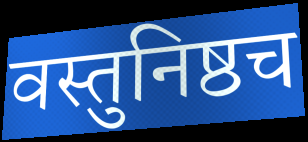
वस्तुनिष्ठच